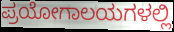
ಪ್ರಯೋಗಾಲಯಗಳಲ್ಲಿ